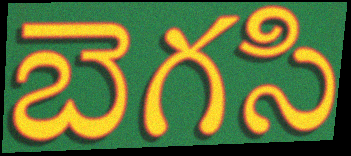
బెగసి